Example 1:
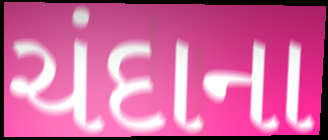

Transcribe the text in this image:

ચંદાના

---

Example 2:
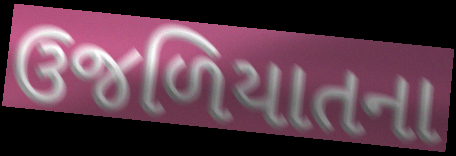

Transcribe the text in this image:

ઉજળિયાતના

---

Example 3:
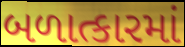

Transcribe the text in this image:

બળાત્કારમાં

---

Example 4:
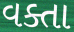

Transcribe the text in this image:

વક્તા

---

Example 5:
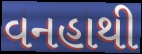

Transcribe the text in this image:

વનહાથી